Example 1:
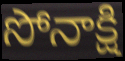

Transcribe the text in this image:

సోనాక్షి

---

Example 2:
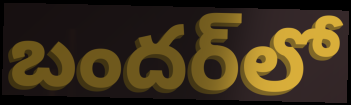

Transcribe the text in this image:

బందర్‌లో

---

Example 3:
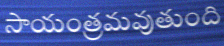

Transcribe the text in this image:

సాయంత్రమవుతుంది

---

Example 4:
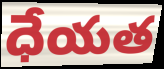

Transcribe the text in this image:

ధేయత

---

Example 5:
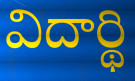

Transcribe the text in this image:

విదార్థి